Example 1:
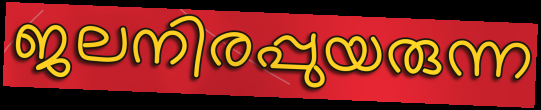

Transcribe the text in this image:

ജലനിരപ്പുയരുന്ന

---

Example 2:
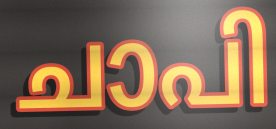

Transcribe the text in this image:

ചാപി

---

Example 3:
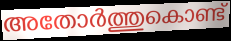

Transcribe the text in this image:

അതോർത്തുകൊണ്ട്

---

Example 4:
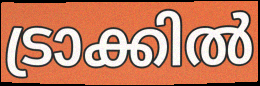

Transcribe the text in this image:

ട്രാക്കിൽ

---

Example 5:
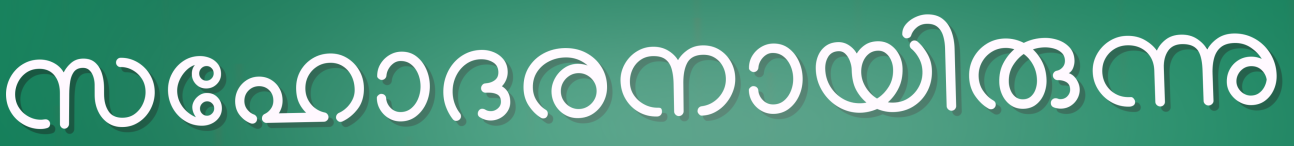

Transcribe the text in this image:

സഹോദരനായിരുന്നു